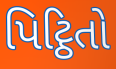
પિટ્ઠિતો